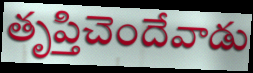
తృప్తిచెందేవాడు